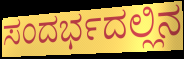
ಸಂದರ್ಭದಲ್ಲಿನ